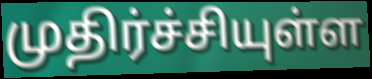
முதிர்ச்சியுள்ள